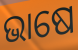
ଭାଷେ